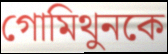
গোমিথুনকে